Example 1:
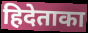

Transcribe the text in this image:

हिदेताका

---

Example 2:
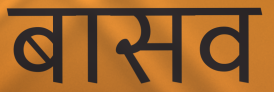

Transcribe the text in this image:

बासव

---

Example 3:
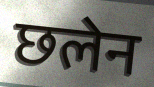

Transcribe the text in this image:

छलेन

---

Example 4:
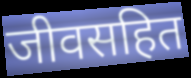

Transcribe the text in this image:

जीवसहित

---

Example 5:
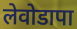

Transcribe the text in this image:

लेवोडापा